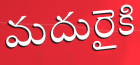
మదురైకి